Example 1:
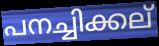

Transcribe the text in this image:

പനച്ചിക്കല്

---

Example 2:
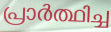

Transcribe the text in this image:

പ്രാർത്ഥിച്ച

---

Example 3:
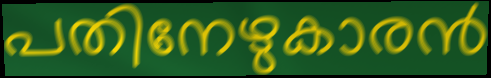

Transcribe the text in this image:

പതിനേഴുകാരൻ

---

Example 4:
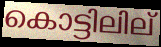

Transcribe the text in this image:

കൊട്ടിലില്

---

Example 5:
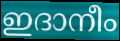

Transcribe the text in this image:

ഇദാനീം